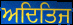
ਅਦਿਤਿਜ